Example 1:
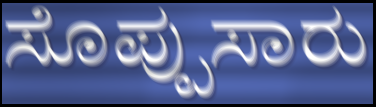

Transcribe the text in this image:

ಸೊಪ್ಪುಸಾರು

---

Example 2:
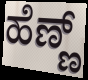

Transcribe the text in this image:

ಹೆಣ್ಣ್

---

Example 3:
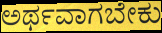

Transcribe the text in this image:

ಅರ್ಥವಾಗಬೇಕು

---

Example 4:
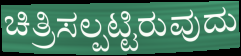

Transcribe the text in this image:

ಚಿತ್ರಿಸಲ್ಪಟ್ಟಿರುವುದು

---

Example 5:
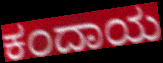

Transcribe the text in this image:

ಕಂದಾಯ